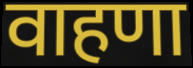
वाहणा